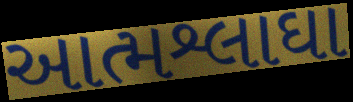
આત્મશ્લાઘા